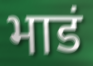
भाडं